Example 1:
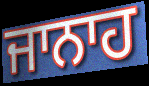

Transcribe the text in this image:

ਜਾਨਾਹ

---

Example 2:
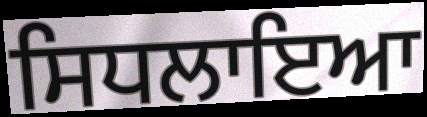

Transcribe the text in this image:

ਸਿਧਲਾਇਆ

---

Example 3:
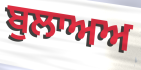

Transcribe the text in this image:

ਬੁਲਾਅਅ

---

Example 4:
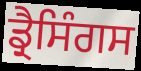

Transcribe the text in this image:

ਡ੍ਰੈਸਿੰਗਸ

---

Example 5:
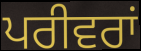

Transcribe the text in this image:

ਪਰੀਵਰਾਂ